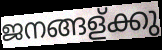
ജനങ്ങള്ക്കു